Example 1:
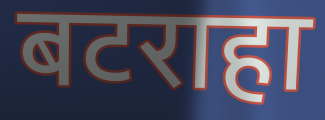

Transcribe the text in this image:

बटराहा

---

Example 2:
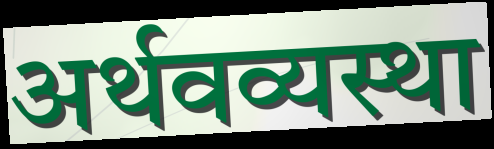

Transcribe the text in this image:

अर्थवव्यस्था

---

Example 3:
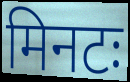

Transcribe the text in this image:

मिनटः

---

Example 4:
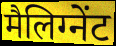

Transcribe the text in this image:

मैलिग्नेंट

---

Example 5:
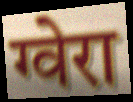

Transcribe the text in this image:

ग्वेरा